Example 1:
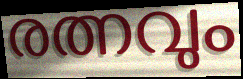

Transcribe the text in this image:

രത്നവും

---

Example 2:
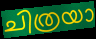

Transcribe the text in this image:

ചിത്രയാ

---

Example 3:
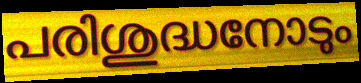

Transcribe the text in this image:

പരിശുദ്ധനോടും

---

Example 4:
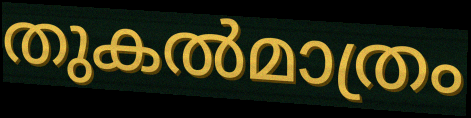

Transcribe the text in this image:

തുകൽമാത്രം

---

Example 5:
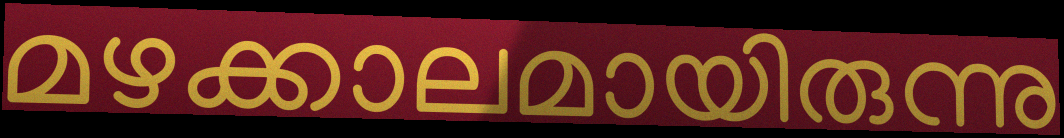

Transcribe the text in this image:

മഴക്കാലമായിരുന്നു